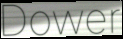
Dower